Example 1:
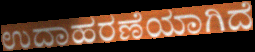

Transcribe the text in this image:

ಉದಾಹರಣೆಯಾಗಿದೆ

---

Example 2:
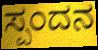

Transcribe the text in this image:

ಸ್ಪಂದನ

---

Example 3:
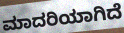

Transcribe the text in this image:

ಮಾದರಿಯಾಗಿದೆ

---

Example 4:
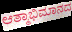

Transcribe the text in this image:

ಆತ್ಮಾಭಿಮಾನದ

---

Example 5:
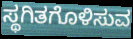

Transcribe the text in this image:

ಸ್ಥಗಿತಗೊಳಿಸುವ